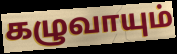
கழுவாயும்